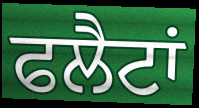
ਫਲੈਟਾਂ